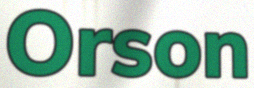
Orson